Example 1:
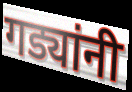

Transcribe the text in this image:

गड्यांनी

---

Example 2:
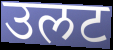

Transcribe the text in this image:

उलट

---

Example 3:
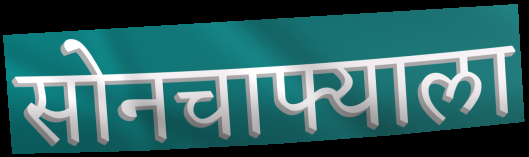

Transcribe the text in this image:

सोनचाफ्याला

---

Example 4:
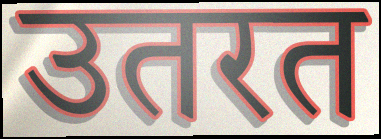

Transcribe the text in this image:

उतरत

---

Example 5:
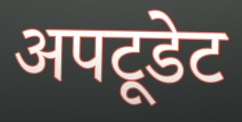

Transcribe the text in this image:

अपटूडेट